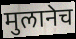
मुलानेच